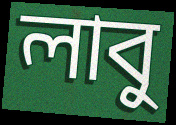
লাবু